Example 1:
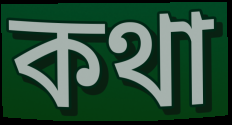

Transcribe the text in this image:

কথা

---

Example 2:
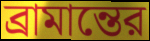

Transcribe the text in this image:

ব্রামান্তের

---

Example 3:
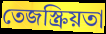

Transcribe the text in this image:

তেজস্ক্রিয়তা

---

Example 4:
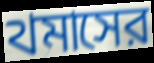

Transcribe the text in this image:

থমাসের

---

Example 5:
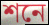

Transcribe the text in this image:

শনে